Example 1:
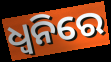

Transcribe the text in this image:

ଧ୍ୱନିରେ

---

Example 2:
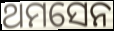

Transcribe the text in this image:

ଥମସେନ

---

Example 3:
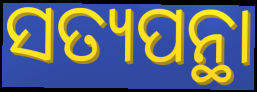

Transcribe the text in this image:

ସତ୍ୟପନ୍ଥା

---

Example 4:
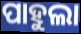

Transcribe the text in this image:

ପାହୁଲା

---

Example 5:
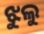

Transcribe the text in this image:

ଝୁଲୁ